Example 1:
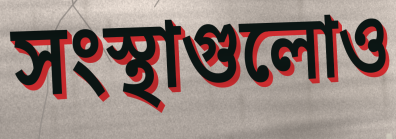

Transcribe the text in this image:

সংস্থাগুলোও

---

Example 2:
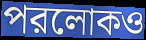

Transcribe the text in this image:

পরলোকও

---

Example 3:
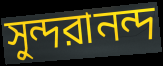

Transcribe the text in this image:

সুন্দরানন্দ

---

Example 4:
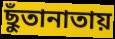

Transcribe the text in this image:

ছুঁতানাতায়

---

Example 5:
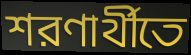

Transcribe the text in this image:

শরণার্থীতে